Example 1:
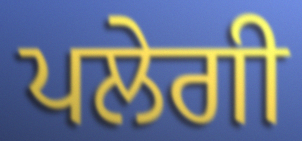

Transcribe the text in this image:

ਪਲੇਗੀ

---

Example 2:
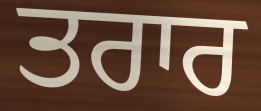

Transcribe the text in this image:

ਤਰਾਰ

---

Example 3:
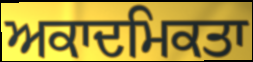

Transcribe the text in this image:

ਅਕਾਦਮਿਕਤਾ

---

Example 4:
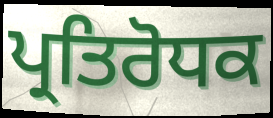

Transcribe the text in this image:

ਪ੍ਰਤਿਰੋਧਕ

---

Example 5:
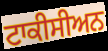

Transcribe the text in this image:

ਟਾਕੀਸੀਅਨ